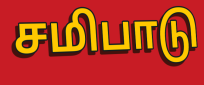
சமிபாடு